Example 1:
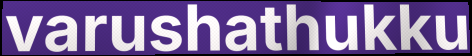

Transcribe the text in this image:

varushathukku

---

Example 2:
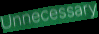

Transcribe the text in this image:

Unnecessary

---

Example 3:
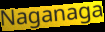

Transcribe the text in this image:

Naganaga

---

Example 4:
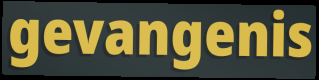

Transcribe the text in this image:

gevangenis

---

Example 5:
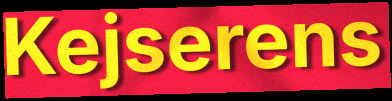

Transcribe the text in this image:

Kejserens